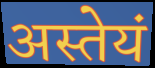
अस्तेयं